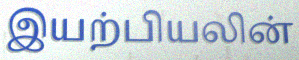
இயற்பியலின்